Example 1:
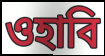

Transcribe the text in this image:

ওহাবি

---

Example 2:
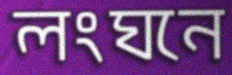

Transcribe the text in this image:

লংঘনে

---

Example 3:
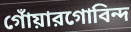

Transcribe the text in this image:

গোঁয়ারগোবিন্দ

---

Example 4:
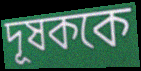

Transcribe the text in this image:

দূষককে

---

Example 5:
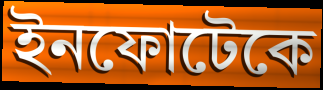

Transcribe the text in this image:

ইনফোটেকে